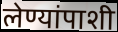
लेण्यांपाशी